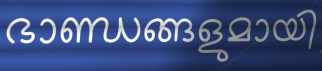
ഭാണ്ഡങ്ങളുമായി